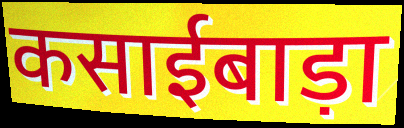
कसाईबाड़ा